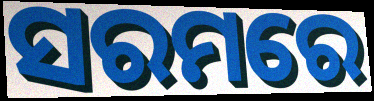
ସରମରେ